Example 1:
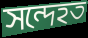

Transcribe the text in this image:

সন্দেহত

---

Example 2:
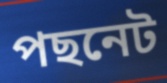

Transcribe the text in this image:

পছনেট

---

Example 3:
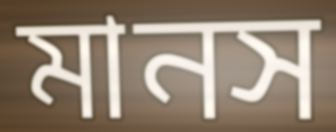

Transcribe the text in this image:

মানস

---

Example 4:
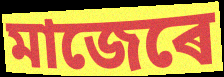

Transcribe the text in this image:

মাজেৰে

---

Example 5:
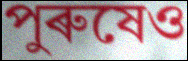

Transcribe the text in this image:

পুৰুষেও